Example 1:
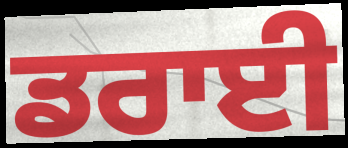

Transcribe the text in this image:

ਡਰਾਈ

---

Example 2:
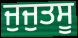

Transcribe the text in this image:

ਜੁਜੁਤਸੂ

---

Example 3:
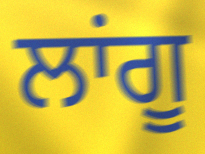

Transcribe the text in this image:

ਲਾਂਗੂ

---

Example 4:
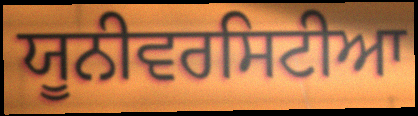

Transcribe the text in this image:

ਯੂਨੀਵਰਸਿਟੀਆ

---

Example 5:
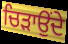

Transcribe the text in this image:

ਚਿੜਾਉਂਦੇ